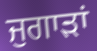
ਜੁਗਾੜਾਂ